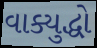
વાક્યુદ્ધો